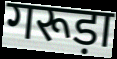
गरूड़ा